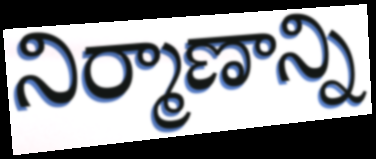
నిర్మాణాన్ని